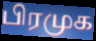
பிரமுக